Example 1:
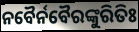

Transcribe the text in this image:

ନବୈର୍ନବୈରଙ୍କୁରିତିଃ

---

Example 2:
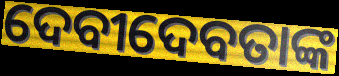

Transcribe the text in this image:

ଦେବୀଦେବତାଙ୍କ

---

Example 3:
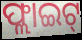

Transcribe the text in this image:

ଫ୍ଲାଇଟ୍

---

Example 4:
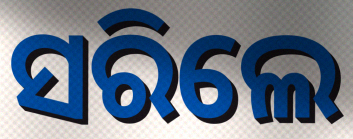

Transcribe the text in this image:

ସରିଲେ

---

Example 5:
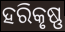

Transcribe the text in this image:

ହରିକୃଷ୍ଣ